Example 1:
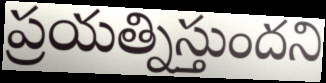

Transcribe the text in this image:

ప్రయత్నిస్తుందని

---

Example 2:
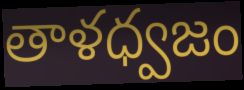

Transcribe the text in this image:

తాళధ్వజం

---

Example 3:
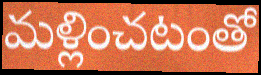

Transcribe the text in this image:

మళ్లించటంతో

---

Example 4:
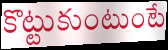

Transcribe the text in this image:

కొట్టుకుంటుంటే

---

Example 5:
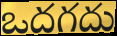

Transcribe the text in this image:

ఒదగదు